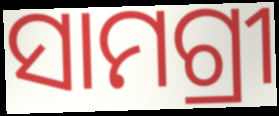
ସାମଗ୍ରୀ